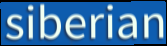
siberian